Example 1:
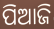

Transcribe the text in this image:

ପିଆଜି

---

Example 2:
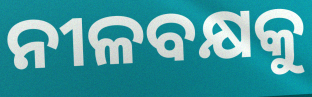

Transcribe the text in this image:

ନୀଳବକ୍ଷକୁ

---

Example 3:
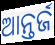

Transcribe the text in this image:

ଆନ୍ତର୍ଜ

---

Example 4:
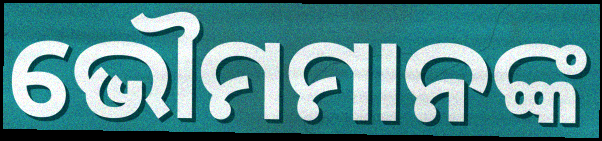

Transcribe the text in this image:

ଭୌମମାନଙ୍କ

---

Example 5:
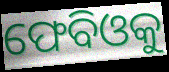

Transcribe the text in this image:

ଫେବିଓକୁ